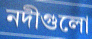
নদীগুলো